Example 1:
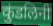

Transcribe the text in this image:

कुंडलिनी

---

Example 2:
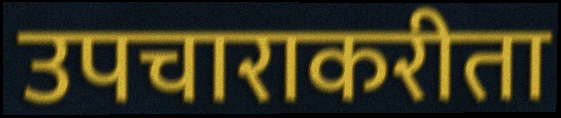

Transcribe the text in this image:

उपचाराकरीता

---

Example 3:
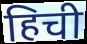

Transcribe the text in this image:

हिची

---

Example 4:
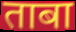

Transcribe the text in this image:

ताबा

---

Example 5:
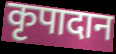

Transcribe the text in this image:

कृपादान